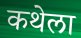
कथेला